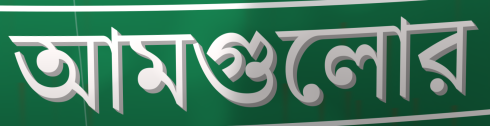
আমগুলোর